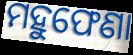
ମହୁଫେଣା